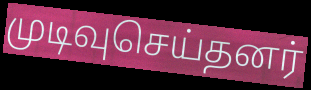
முடிவுசெய்தனர்